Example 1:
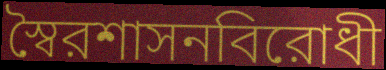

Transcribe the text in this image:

স্বৈরশাসনবিরোধী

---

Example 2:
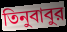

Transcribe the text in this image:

তিনুবাবুর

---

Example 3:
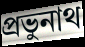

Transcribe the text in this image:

প্রভুনাথ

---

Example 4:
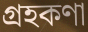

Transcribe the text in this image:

গ্রহকণা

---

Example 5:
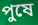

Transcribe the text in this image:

পুষে